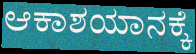
ಆಕಾಶಯಾನಕ್ಕೆ